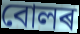
বোলৰ